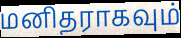
மனிதராகவும்